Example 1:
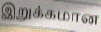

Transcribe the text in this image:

இறுக்கமான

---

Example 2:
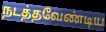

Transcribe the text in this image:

நடத்தவேண்டிய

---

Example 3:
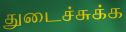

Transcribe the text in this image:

துடைச்சுக்க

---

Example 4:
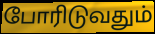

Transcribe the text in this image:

போரிடுவதும்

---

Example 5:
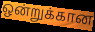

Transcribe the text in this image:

ஒன்றுக்கான